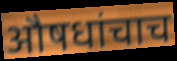
औषधांचाच